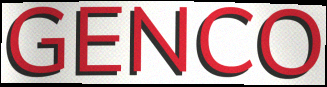
GENCO